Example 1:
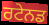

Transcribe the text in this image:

ਰਟੇਨਡ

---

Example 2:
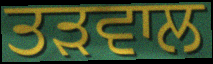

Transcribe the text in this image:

ਤੜਵਾਲ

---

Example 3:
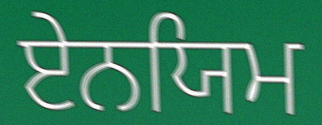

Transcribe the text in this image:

ਏਨਯਿਮ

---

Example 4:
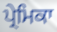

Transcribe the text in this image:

ਪ੍ਰੇਮਿਕਾ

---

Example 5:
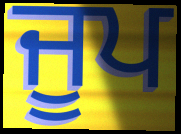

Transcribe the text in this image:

ਜੂਪ